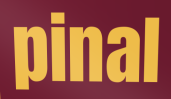
pinal